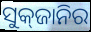
ସୁକ୍‌ଜାନିର